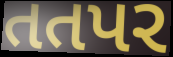
તતપર